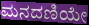
ಮನದಣಿಯೇ